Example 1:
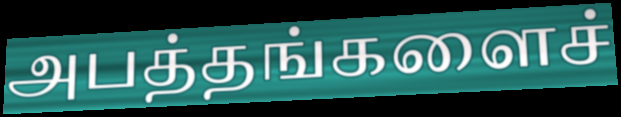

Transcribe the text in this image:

அபத்தங்களைச்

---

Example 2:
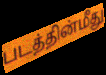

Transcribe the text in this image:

படத்தின்மீது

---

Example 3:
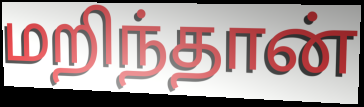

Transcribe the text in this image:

மறிந்தான்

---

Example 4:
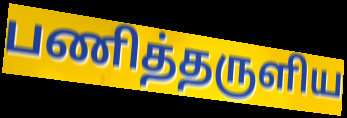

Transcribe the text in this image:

பணித்தருளிய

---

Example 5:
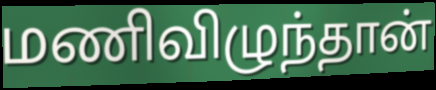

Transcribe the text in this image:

மணிவிழுந்தான்